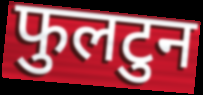
फुलटुन